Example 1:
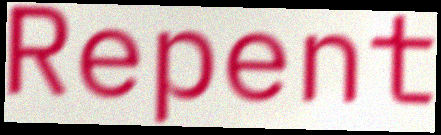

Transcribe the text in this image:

Repent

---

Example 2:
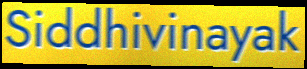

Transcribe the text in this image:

Siddhivinayak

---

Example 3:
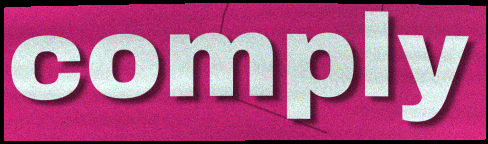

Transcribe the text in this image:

comply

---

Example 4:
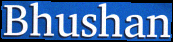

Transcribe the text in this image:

Bhushan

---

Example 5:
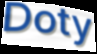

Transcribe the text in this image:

Doty